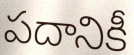
పదానికీ